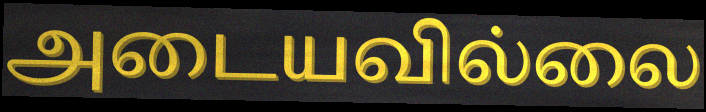
அடையவில்லை